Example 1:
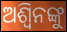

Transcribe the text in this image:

ଅଶ୍ବିନଙ୍କୁ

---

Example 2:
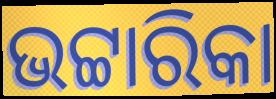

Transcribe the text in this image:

ଭଟ୍ଟାରିକା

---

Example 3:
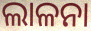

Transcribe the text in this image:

ଲାଳନା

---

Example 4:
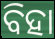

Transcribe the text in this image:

ବିହା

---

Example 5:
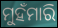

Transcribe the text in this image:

ମୁହଁମାରି